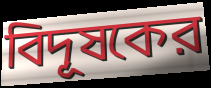
বিদূষকের